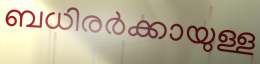
ബധിരർക്കായുള്ള